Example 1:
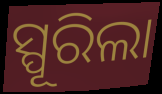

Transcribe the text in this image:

ସ୍ପୂରିଲା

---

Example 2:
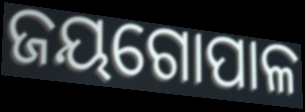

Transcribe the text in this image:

ଜୟଗୋପାଳ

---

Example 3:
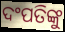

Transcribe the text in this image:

ଦଂପତିଙ୍କୁ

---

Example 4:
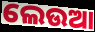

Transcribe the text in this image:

ଲେଉଆ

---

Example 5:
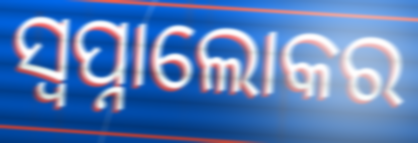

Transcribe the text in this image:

ସ୍ୱପ୍ନାଲୋକର